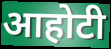
आहोटी